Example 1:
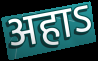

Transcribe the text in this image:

अहाऽ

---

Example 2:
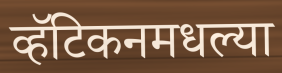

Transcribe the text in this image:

व्हॅटिकनमधल्या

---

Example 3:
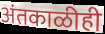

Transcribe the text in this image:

अंतकाळीही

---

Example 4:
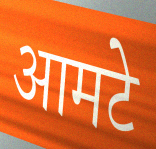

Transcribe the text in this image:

आमटे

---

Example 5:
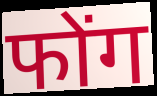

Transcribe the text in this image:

फोंग